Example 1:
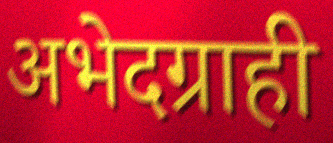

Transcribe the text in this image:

अभेदग्राही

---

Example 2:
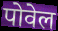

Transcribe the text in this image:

पोवेल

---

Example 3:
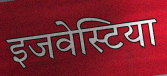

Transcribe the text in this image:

इजवेस्टिया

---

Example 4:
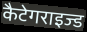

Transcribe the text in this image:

कैटेगराइज्ड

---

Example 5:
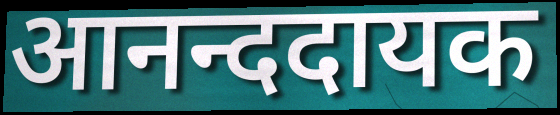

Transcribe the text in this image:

आनन्ददायक